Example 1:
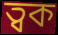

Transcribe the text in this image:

ত্বক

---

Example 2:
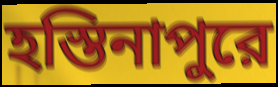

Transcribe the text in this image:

হস্তিনাপুরে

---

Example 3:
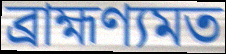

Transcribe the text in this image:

ব্রাহ্মণ্যমত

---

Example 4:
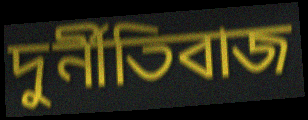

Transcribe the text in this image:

দুর্নীতিবাজ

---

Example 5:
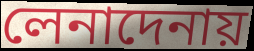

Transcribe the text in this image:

লেনাদেনায়